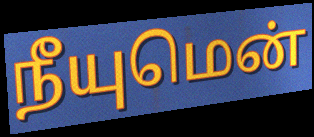
நீயுமென்